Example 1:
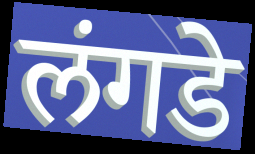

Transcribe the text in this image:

लंगडे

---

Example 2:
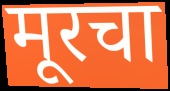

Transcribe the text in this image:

मूरचा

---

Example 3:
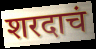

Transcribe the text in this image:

शरदाचं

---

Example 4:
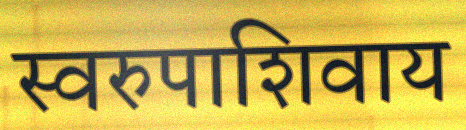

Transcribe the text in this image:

स्वरुपाशिवाय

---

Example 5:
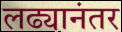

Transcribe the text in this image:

लढ्यानंतर